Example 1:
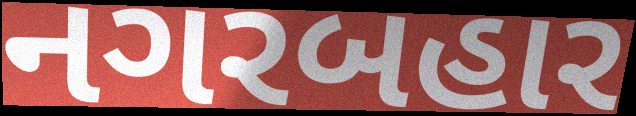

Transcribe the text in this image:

નગરબહાર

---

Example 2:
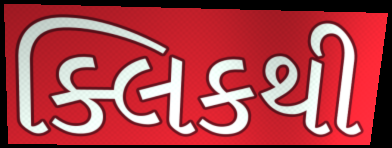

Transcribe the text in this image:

ક્લિકથી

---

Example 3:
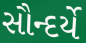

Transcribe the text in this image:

સૌન્દર્યે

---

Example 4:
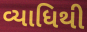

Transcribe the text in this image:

વ્યાધિથી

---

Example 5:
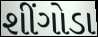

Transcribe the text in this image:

શીંગોડા